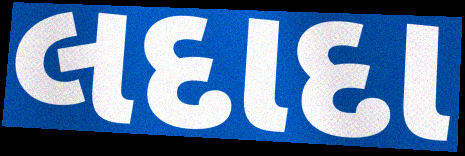
લદાદા